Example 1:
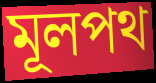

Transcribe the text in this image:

মূলপথ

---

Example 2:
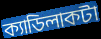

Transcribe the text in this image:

ক্যাডিলাকটা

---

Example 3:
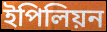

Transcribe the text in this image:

ইপিলিয়ন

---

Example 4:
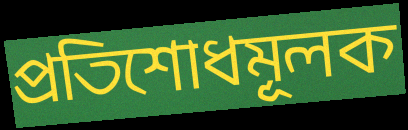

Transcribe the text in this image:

প্রতিশোধমূলক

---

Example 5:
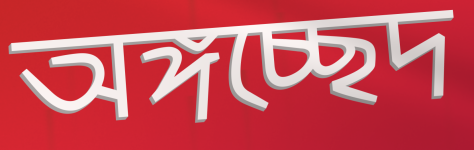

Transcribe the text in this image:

অঙ্গচ্ছেদ